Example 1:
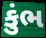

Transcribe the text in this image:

કુંભ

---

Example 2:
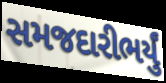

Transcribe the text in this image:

સમજદારીભર્યું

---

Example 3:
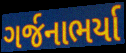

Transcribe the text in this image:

ગર્જનાભર્યા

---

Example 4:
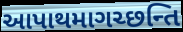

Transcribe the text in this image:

આપાથમાગચ્છન્તિ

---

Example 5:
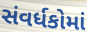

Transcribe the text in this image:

સંવર્ધકોમાં